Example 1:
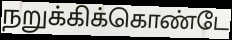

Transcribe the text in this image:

நறுக்கிக்கொண்டே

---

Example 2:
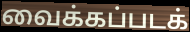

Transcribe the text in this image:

வைக்கப்படக்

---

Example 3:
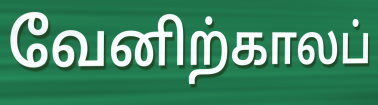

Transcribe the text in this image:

வேனிற்காலப்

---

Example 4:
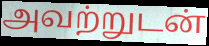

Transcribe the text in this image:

அவற்றுடன்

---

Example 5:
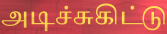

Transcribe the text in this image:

அடிச்சுகிட்டு